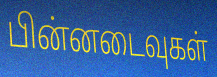
பின்னடைவுகள்